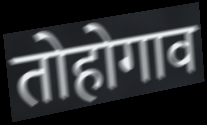
तोहोगाव